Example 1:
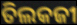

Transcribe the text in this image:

ତିଲକଜୀ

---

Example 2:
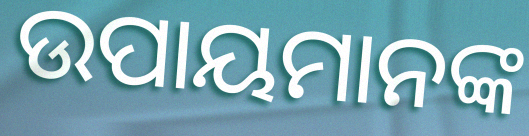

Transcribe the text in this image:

ଉପାୟମାନଙ୍କ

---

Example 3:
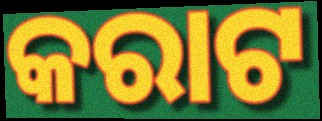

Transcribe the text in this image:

କରାଟ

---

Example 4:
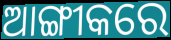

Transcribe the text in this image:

ଆଙ୍ଗୀକରେ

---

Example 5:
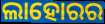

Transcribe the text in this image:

ଲାହୋରର